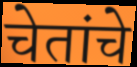
चेतांचे